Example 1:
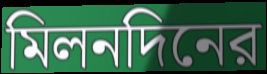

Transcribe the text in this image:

মিলনদিনের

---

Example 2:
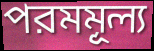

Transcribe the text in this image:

পরমমূল্য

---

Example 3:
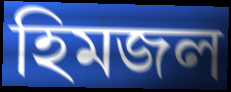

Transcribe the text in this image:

হিমজল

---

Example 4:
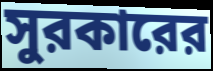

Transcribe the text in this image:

সুরকারের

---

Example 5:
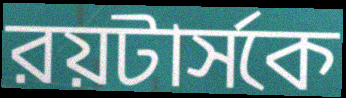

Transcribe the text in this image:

রয়টার্সকে